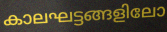
കാലഘട്ടങ്ങളിലോ